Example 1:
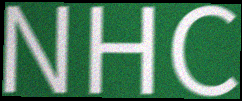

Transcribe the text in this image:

NHC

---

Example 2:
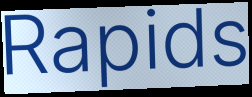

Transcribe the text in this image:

Rapids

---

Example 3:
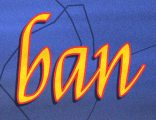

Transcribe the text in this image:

ban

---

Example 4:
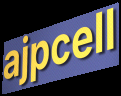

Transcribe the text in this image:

ajpcell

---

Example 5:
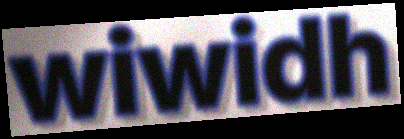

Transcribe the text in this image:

wiwidh